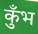
कुँभ